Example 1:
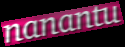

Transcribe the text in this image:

nanantu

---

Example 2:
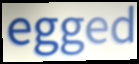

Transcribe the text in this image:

egged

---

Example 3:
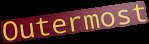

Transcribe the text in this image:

Outermost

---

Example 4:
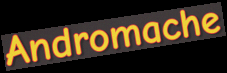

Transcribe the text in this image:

Andromache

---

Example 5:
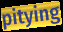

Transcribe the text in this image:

pitying